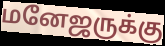
மனேஜருக்கு